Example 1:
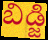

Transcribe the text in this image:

బిడ్జి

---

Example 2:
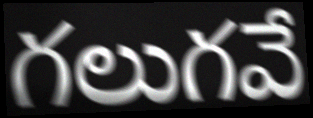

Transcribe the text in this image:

గలుగవే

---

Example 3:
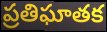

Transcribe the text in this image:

ప్రతిఘాతక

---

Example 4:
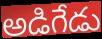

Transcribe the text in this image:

అడిగేడు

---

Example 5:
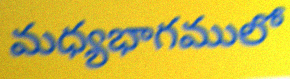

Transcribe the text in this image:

మధ్యభాగములో